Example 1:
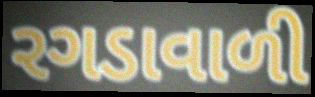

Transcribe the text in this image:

રગડાવાળી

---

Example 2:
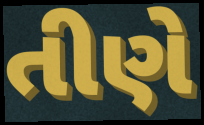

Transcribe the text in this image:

તીણે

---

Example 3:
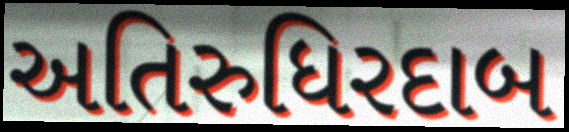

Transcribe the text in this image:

અતિરુધિરદાબ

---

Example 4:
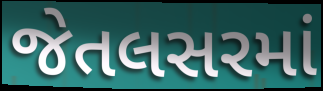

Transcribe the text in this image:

જેતલસરમાં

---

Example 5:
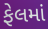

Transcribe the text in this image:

ફેલમાં